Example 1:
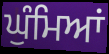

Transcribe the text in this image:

ਘੁੰਮਿਆਂ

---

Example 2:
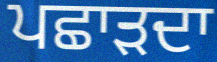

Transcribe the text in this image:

ਪਛਾੜਦਾ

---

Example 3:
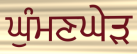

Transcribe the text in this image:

ਘੁੰਮਣਘੇੜ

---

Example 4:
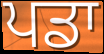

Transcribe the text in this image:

ਪਡਾ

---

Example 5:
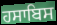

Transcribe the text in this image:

ਹਸਾਬਿਸ